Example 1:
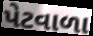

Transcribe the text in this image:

પેટવાળા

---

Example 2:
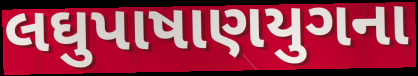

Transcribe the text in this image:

લઘુપાષાણયુગના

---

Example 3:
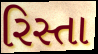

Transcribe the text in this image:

રિસ્તા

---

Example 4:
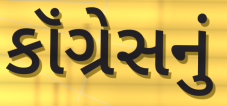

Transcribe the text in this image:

કૉંગ્રેસનું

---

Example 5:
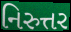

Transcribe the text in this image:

નિરુત્તર